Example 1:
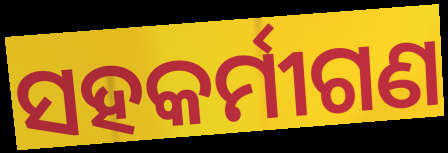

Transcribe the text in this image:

ସହକର୍ମୀଗଣ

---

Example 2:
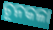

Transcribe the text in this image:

ଚୂନକଳା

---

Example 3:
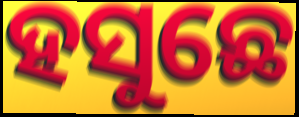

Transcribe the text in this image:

ହସୁଛେ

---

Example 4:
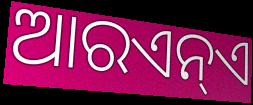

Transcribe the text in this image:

ଆରଏନ୍ଏ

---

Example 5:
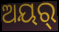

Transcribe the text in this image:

ଅୟର୍